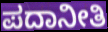
ಪದಾನೀತಿ